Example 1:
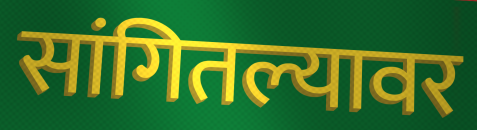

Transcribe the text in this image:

सांगितल्यावर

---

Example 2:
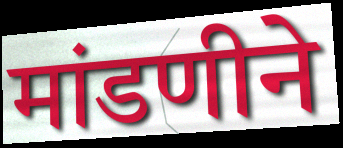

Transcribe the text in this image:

मांडणीने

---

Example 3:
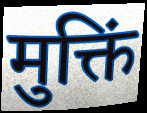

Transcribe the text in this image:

मुक्तिं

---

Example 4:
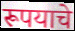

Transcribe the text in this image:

रूपयाचे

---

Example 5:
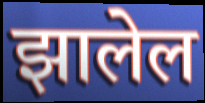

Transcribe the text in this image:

झालेल